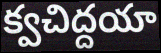
క్వచిద్దయా